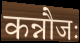
कन्नौजः